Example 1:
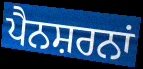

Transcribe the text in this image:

ਪੈਨਸ਼ਰਨਾਂ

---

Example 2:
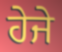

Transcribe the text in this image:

ਹੇਜੇ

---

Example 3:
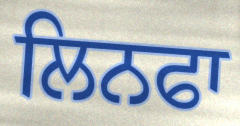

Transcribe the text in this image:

ਲਿਨਫਾ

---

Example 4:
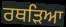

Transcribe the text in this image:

ਰਥੜਿਆ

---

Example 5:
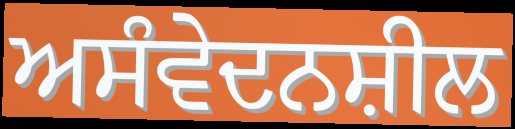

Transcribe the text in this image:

ਅਸੰਵੇਦਨਸ਼ੀਲ